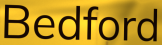
Bedford